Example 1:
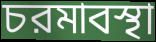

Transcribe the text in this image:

চরমাবস্থা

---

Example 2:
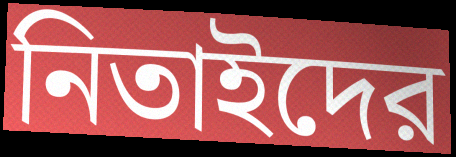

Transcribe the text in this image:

নিতাইদের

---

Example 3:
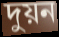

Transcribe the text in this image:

দুয়ন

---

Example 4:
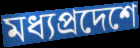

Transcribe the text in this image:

মধ্যপ্রদেশে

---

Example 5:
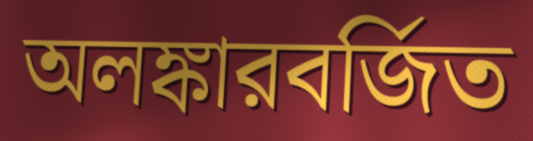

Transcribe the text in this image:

অলঙ্কারবর্জিত